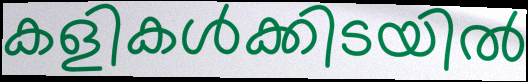
കളികൾക്കിടയിൽ